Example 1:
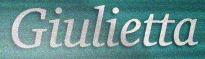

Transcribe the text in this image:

Giulietta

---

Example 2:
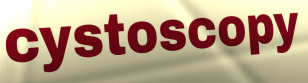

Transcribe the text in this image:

cystoscopy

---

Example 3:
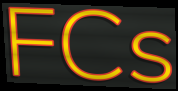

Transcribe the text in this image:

FCs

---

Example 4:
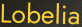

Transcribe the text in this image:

Lobelia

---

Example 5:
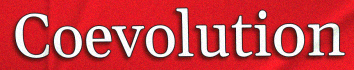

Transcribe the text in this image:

Coevolution